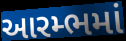
આરમ્ભમાં